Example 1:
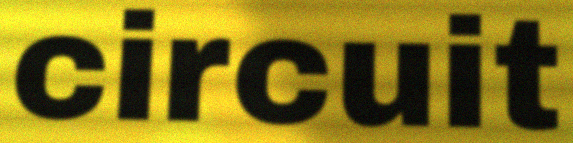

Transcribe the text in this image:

circuit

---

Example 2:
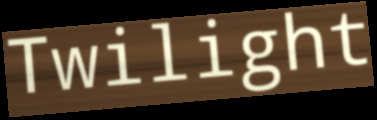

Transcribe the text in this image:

Twilight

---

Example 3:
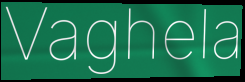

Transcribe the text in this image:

Vaghela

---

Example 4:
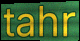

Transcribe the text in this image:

tahr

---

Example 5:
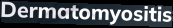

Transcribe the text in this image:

Dermatomyositis